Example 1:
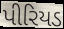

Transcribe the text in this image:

પીરિયડ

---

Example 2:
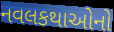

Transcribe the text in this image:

નવલકથાઓનો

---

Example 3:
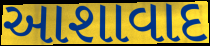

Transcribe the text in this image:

આશાવાદ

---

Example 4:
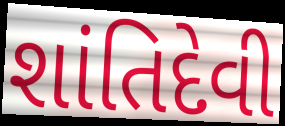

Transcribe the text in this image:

શાંતિદેવી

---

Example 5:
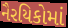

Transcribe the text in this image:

નૈરયિકોમાં